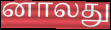
னாலது